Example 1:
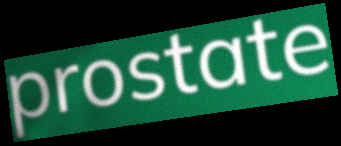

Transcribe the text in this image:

prostate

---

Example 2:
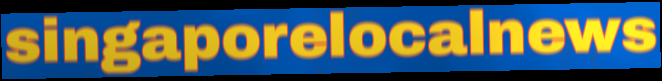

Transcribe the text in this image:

singaporelocalnews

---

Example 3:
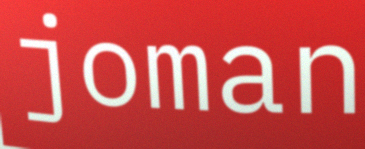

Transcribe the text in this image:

joman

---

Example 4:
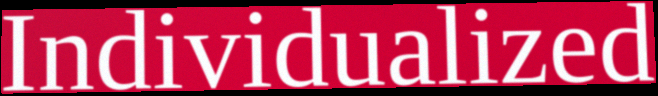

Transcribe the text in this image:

Individualized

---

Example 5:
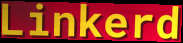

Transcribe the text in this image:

Linkerd